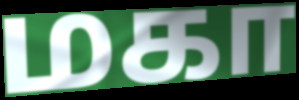
மகா